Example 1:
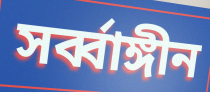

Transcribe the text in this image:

সর্ব্বাঙ্গীন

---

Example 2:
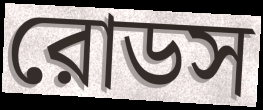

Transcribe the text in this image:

রোডস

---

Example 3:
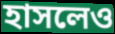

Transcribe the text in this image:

হাসলেও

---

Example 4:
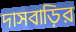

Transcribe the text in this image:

দাসবাড়ির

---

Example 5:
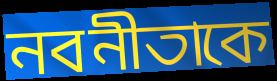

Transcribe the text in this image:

নবনীতাকে